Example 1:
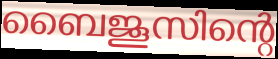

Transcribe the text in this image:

ബൈജൂസിന്റെ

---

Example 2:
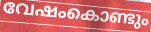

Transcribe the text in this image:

വേഷംകൊണ്ടും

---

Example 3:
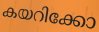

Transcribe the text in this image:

കയറിക്കോ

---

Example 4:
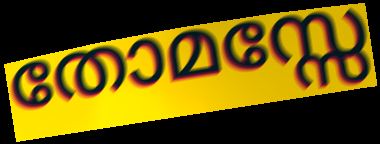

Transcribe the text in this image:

തോമസ്സേ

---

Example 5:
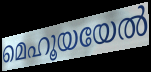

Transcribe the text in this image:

മെഹൂയയേൽ